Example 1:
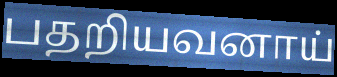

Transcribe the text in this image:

பதறியவனாய்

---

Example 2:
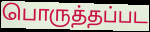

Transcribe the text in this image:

பொருத்தப்பட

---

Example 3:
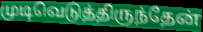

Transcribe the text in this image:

முடிவெடுத்திருந்தேன்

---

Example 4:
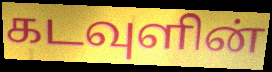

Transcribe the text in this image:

கடவுளின்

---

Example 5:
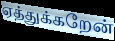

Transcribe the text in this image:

ஏத்துக்கறேன்